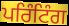
ਪਰਿੰਟਿੰਗ